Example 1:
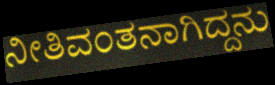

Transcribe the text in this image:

ನೀತಿವಂತನಾಗಿದ್ದನು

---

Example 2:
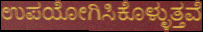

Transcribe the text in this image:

ಉಪಯೋಗಿಸಿಕೊಳ್ಳುತ್ತವೆ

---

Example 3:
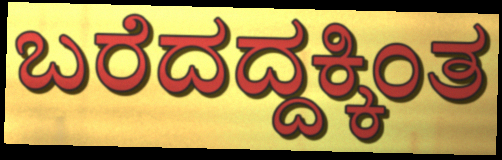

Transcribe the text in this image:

ಬರೆದದ್ದಕ್ಕಿಂತ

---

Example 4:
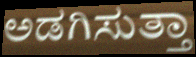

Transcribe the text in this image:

ಅಡಗಿಸುತ್ತಾ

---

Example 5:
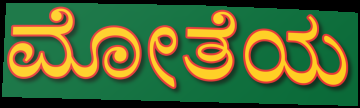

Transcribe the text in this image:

ಮೋತೆಯ